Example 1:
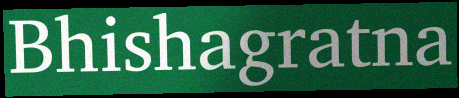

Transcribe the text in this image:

Bhishagratna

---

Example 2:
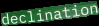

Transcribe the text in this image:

declination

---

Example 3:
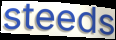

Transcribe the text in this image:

steeds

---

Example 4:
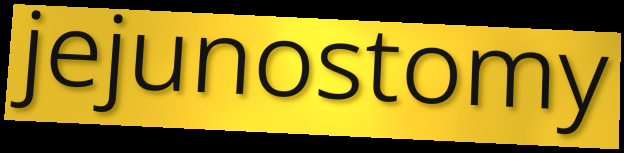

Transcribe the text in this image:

jejunostomy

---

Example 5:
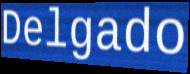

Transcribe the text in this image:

Delgado